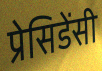
प्रेसिडेंसी